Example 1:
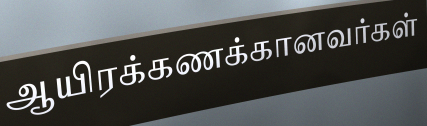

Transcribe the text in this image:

ஆயிரக்கணக்கானவர்கள்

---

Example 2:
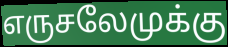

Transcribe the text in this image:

எருசலேமுக்கு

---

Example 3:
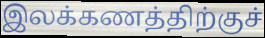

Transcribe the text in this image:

இலக்கணத்திற்குச்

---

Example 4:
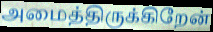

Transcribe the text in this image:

அமைத்திருக்கிறேன்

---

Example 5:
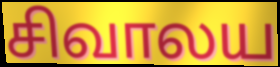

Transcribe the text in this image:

சிவாலய